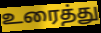
உரைத்து